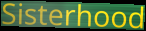
Sisterhood